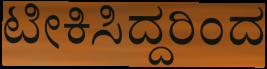
ಟೀಕಿಸಿದ್ದರಿಂದ